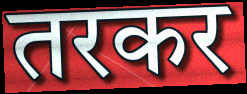
तरकर